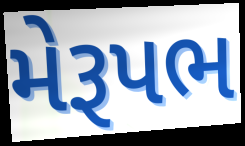
મેરૂપભ